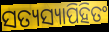
ସତ୍ୟସ୍ୟାପିହିତଂ